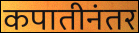
कपातीनंतर